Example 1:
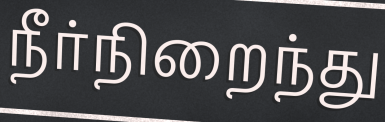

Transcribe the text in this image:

நீர்நிறைந்து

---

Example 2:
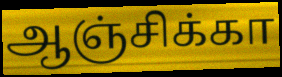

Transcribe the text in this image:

ஆஞ்சிக்கா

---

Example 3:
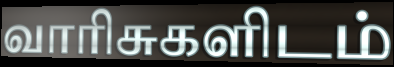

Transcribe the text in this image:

வாரிசுகளிடம்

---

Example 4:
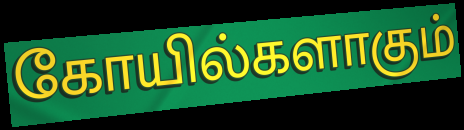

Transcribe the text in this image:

கோயில்களாகும்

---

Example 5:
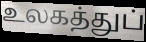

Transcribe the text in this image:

உலகத்துப்